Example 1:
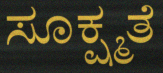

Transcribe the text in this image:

ಸೂಕ್ಷ್ಮತೆ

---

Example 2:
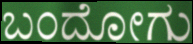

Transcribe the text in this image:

ಬಂದೋಗು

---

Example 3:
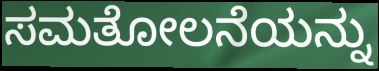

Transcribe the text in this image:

ಸಮತೋಲನೆಯನ್ನು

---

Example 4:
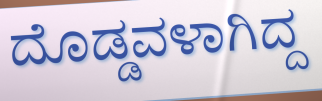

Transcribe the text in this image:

ದೊಡ್ಡವಳಾಗಿದ್ದ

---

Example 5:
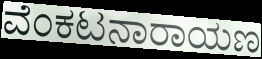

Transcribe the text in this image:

ವೆಂಕಟನಾರಾಯಣ